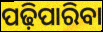
ପଢ଼ିପାରିବା